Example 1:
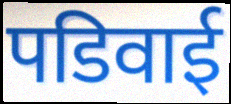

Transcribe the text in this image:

पडिवाई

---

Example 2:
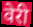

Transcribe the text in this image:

वेरी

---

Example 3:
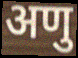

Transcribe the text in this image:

अणु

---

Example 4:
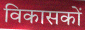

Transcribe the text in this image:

विकासकों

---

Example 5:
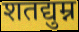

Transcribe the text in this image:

शतद्युम्न